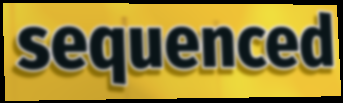
sequenced